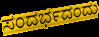
ಸಂದರ್ಭದಂದು